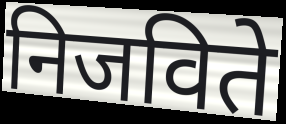
निजविते